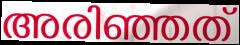
അരിഞ്ഞത്